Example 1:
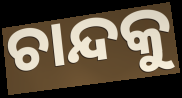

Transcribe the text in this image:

ଚାନ୍ଦକୁ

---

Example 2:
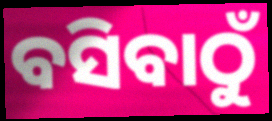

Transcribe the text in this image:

ବସିବାଠୁଁ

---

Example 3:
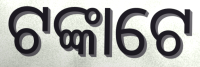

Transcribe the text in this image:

ଟଙ୍କାଟେ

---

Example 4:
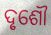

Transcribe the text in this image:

ଦୃଶୌ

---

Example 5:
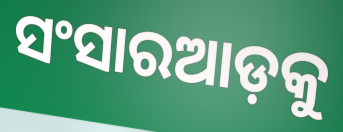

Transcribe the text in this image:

ସଂସାରଆଡ଼କୁ